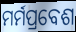
ମର୍ମପ୍ରବେଶ